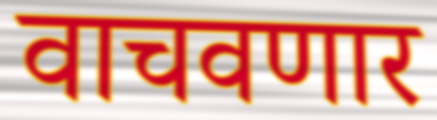
वाचवणार